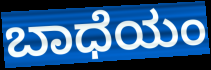
ಬಾಧೆಯಂ